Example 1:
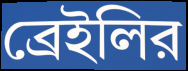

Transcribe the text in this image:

ব্রেইলির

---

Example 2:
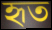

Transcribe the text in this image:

হৃত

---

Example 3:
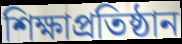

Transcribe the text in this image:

শিক্ষাপ্রতিষ্ঠান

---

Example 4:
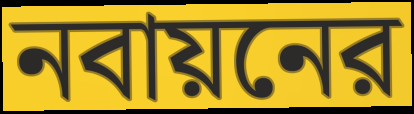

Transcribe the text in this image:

নবায়নের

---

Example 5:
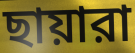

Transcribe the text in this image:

ছায়ারা